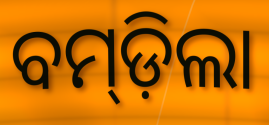
ବମ୍‍ଡ଼ିଲା